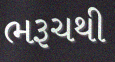
ભરૂચથી